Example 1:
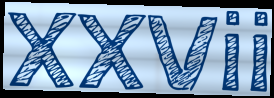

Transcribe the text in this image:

XXVii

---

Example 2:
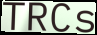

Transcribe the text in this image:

TRCs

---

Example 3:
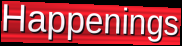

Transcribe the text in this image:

Happenings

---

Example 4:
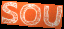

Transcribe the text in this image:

SOU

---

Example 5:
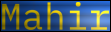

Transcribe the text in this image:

Mahir